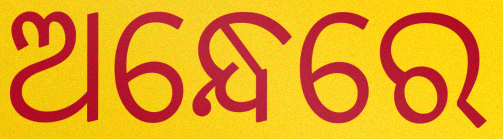
ଅନ୍ଧେରେ